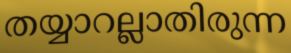
തയ്യാറല്ലാതിരുന്ന